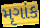
મૃગાંક